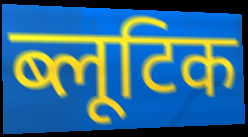
ब्लूटिक